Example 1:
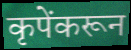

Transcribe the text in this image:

कृपेंकरून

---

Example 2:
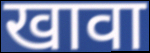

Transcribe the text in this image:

खावा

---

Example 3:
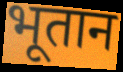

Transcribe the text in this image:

भूतान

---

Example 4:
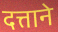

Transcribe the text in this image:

दत्ताने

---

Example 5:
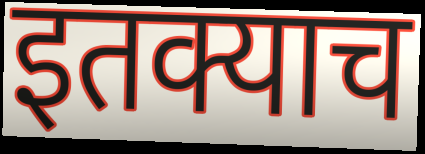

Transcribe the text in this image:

इतक्याच